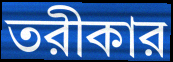
তরীকার